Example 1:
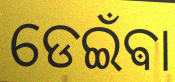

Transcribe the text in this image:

ଡେଇଁଵା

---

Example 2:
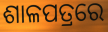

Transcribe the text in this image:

ଶାଳପତ୍ରରେ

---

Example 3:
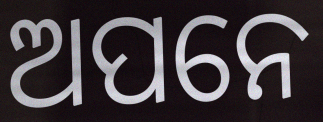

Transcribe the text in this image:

ଅପନେ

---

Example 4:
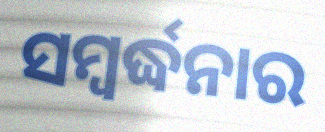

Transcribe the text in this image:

ସମ୍ବର୍ଦ୍ଧନାର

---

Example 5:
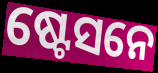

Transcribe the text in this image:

ଷ୍ଟେସନେ